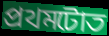
প্ৰথমটোত